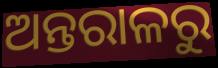
ଅନ୍ତରାଳରୁ